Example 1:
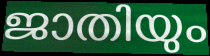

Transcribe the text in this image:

ജാതിയും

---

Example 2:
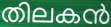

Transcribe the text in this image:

തിലകൻ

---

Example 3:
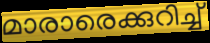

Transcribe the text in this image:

മാരാരെക്കുറിച്ച്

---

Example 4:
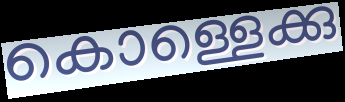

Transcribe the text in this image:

കൊള്ളെക്കു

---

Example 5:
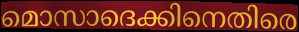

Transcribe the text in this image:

മൊസാദെക്കിനെതിരെ